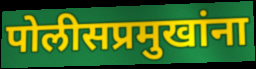
पोलीसप्रमुखांना